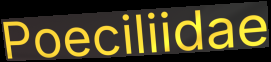
Poeciliidae